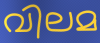
വിലമ